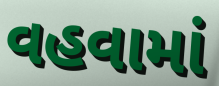
વહવામાં